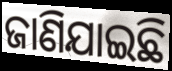
ଜାଣିଯାଇଛି